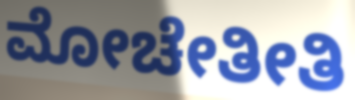
ಮೋಚೇತೀತಿ